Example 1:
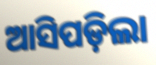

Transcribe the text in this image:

ଆସିପଡ଼ିଲା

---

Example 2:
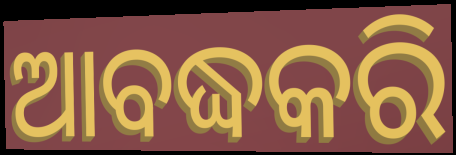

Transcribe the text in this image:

ଆବଦ୍ଧକରି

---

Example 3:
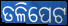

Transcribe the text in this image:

ତଳିପେଟ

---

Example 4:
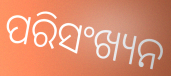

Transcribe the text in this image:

ପରିସଂଖ୍ୟନ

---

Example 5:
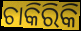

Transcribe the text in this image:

ଚାକିରିକି